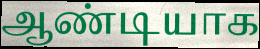
ஆண்டியாக